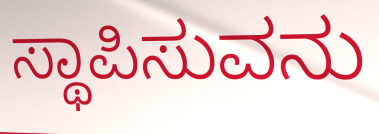
ಸ್ಥಾಪಿಸುವನು